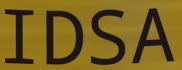
IDSA